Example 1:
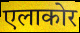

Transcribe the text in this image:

एलाकोर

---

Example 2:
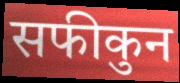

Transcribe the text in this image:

सफीकुन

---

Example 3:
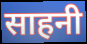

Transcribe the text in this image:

साहनी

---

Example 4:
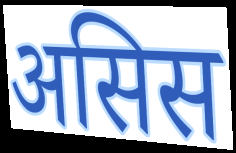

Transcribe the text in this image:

असिस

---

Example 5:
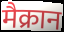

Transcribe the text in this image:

मैक्रान